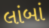
લાંબાં